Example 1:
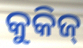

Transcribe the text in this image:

କୁକିଜ୍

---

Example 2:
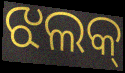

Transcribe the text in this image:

ଝଲକ୍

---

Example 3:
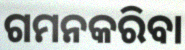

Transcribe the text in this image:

ଗମନକରିବା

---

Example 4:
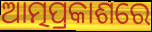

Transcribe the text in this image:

ଆତ୍ମପ୍ରକାଶରେ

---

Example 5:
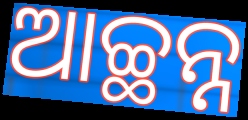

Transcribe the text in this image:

ଆଚ୍ଛନ୍ନ